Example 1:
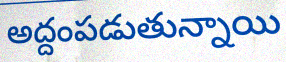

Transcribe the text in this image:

అద్దంపడుతున్నాయి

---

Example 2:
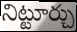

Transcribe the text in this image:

నిట్టూర్చు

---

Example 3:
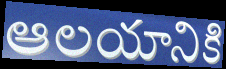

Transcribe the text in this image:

ఆలయానికి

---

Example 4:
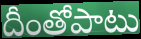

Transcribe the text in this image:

దీంతోపాటు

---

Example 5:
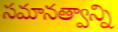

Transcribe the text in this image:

సమానత్వాన్ని